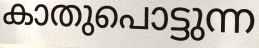
കാതുപൊട്ടുന്ന